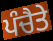
ਪੰਚੈਤੇ